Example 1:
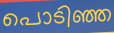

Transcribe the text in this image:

പൊടിഞ്ഞ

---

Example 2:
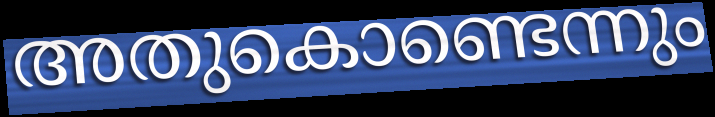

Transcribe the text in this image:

അതുകൊണ്ടെന്നും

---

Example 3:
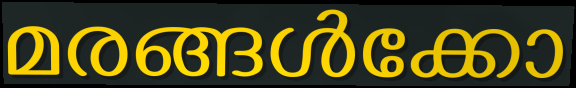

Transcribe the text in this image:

മരങ്ങൾക്കോ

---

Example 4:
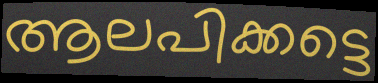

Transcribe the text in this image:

ആലപിക്കട്ടെ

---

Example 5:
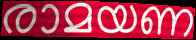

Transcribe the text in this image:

രാമയണ